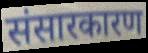
संसारकारण